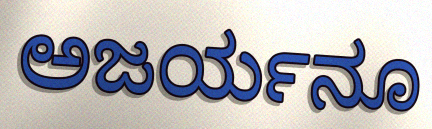
ಅಜರ್ಯನೂ